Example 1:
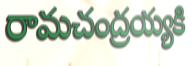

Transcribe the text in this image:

రామచంద్రయ్యకి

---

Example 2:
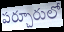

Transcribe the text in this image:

పర్చూరులో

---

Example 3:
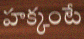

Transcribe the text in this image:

హక్కంటే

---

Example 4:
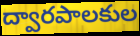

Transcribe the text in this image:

ద్వారపాలకుల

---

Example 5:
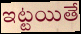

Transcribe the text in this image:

ఇట్టయితే